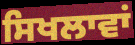
ਸਿਖਲਾਵਾਂ